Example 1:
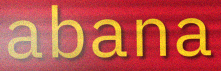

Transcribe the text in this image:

abana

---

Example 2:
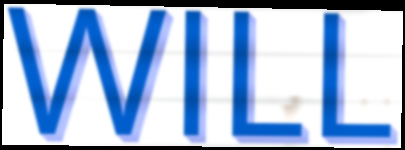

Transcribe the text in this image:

WILL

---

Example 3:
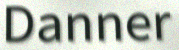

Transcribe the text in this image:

Danner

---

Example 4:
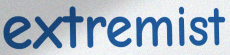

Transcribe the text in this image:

extremist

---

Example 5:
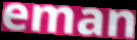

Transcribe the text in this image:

eman